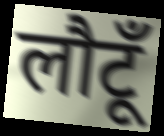
लौटूँ